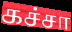
கச்சா